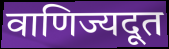
वाणिज्यदूत